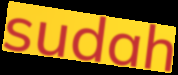
sudah